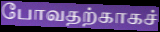
போவதற்காகச்